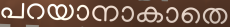
പറയാനാകാതെ